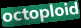
octoploid